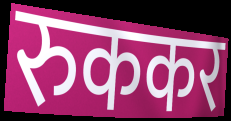
रुककर